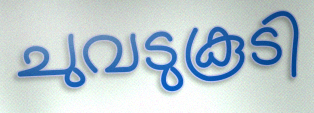
ചുവടുകൂടി